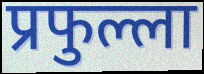
प्रफुल्ला